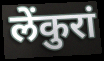
लेंकुरां